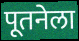
पूतनेला